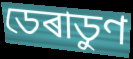
ডেৰাডুণ